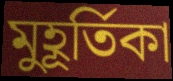
মুহূর্তিকা